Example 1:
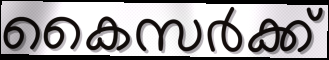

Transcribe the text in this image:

കൈസർക്ക്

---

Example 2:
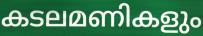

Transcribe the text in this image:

കടലമണികളും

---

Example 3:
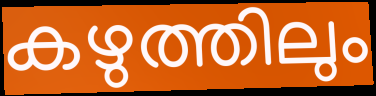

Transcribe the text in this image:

കഴുത്തിലും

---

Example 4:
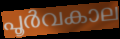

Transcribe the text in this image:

പൂർവകാല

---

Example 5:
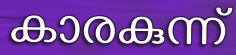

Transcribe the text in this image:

കാരകുന്ന്